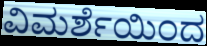
ವಿಮರ್ಶೆಯಿಂದ